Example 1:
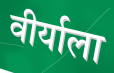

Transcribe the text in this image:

वीर्याला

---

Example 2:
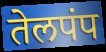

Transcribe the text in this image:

तेलपंप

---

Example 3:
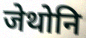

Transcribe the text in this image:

जेथोनि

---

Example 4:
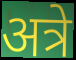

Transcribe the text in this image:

अत्रे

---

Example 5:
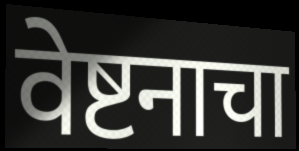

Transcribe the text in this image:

वेष्टनाचा